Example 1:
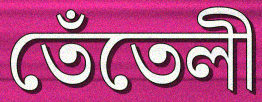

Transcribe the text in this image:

তেঁতেলী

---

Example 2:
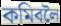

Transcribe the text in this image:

কমিবলৈ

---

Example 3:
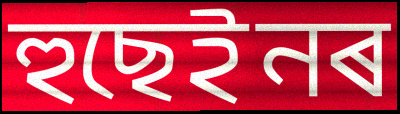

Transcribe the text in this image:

হুছেইনৰ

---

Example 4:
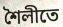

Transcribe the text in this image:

শৈলীতে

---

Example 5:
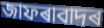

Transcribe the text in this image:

জাফৰাবাদৰ